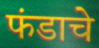
फंडाचे